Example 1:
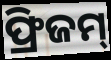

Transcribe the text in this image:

ଫ୍ରିଜମ୍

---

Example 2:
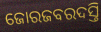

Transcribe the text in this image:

ଜୋରଜବରଦସ୍ତି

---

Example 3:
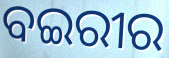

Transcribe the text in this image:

ବଇରୀର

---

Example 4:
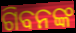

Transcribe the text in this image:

ଗିବନଙ୍କ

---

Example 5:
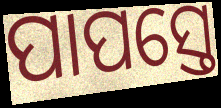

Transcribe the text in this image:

ପାପସ୍ତେ